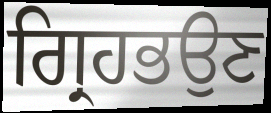
ਗ੍ਰਿਹਭਉਣ